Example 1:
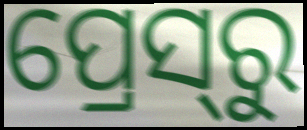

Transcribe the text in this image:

ପ୍ରେସ୍‌ରୁ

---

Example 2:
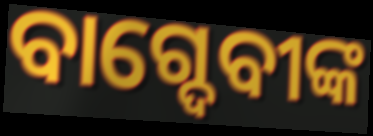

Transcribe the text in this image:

ବାଗ୍ଦେବୀଙ୍କ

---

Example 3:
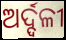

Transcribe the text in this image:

ଅର୍ଦ୍ଦଳୀ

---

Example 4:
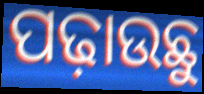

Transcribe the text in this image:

ପଢ଼ାଉଛୁ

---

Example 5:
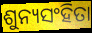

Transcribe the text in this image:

ଶୁନ୍ୟସଂହିତା